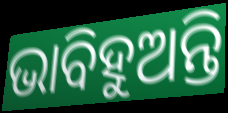
ଭାବିହୁଅନ୍ତି